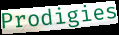
Prodigies